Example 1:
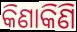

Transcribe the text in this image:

କିଣାକିଣି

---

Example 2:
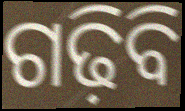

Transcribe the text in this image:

ଗଢ଼ିବି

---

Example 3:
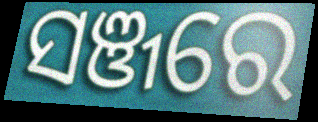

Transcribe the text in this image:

ସଞ୍ଜରେ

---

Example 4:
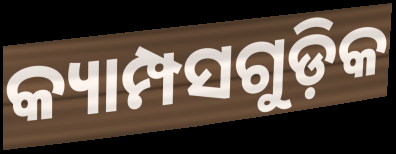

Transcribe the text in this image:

କ୍ୟାମ୍ପସଗୁଡ଼ିକ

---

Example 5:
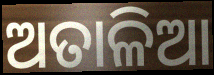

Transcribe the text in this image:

ଅତାଳିଆ